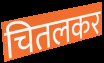
चितलकर